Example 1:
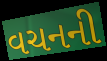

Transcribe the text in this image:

વચનની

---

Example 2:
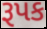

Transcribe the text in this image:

રૂપક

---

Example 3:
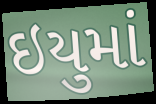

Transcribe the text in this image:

ઇયુમાં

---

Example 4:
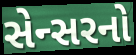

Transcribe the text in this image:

સેન્સરનો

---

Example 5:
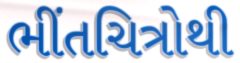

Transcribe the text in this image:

ભીંતચિત્રોથી